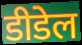
डीडेल